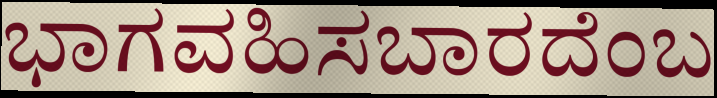
ಭಾಗವಹಿಸಬಾರದೆಂಬ